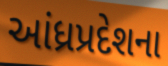
આંધ્રપ્રદેશના